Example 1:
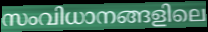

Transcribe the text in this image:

സംവിധാനങ്ങളിലെ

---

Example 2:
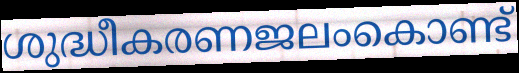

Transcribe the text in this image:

ശുദ്ധീകരണജലംകൊണ്ട്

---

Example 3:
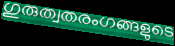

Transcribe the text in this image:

ഗുരുത്വതരംഗങ്ങളുടെ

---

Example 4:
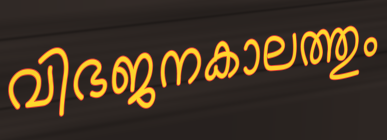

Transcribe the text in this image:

വിഭജനകാലത്തും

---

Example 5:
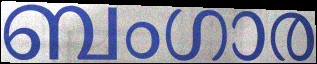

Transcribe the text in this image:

ബംഗാര